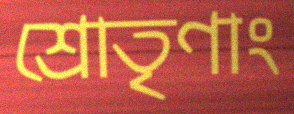
শ্রোতৃণাং